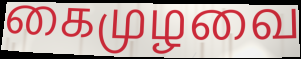
கைமுழவை